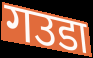
गउडा